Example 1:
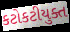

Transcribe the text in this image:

કટોકટીયુક્ત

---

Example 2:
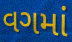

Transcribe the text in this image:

વગમાં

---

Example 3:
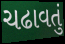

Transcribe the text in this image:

ચઢાવતું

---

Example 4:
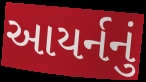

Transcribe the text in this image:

આયર્નનું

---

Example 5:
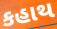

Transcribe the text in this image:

કહાથ